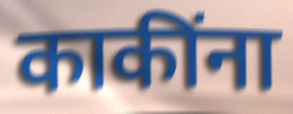
काकींना